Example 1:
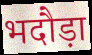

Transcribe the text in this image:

भदौड़ा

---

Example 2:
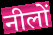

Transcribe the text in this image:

नीलों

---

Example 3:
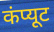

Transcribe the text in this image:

कंप्यूट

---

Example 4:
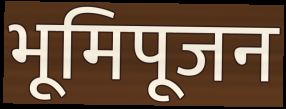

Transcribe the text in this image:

भूमिपूजन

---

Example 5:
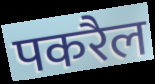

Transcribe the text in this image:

पकरैल